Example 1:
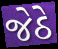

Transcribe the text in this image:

જેઠે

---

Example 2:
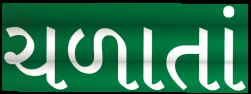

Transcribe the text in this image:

ચળાતાં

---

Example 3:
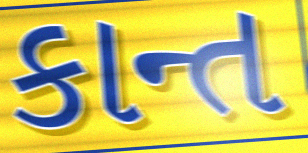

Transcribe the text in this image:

કાન્ત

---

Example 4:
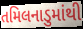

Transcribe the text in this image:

તમિલનાડુમાંથી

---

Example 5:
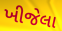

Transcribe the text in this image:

ખીજેલા